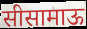
सीसामाऊ